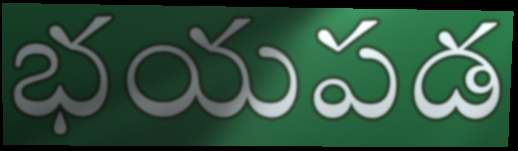
భయపడ